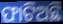
ଫାଟିଅଛି